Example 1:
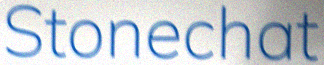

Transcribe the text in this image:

Stonechat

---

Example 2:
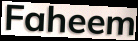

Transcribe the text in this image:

Faheem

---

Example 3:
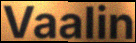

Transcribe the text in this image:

Vaalin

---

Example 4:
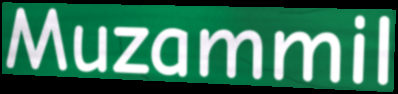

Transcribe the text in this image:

Muzammil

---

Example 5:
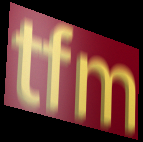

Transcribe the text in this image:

tfm